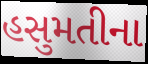
હસુમતીના